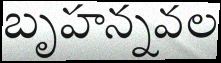
బృహన్నవల